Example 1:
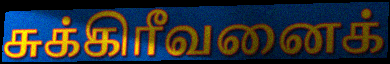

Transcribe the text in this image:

சுக்கிரீவனைக்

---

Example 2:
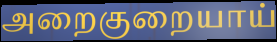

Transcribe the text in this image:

அறைகுறையாய்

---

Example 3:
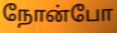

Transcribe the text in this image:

நோன்போ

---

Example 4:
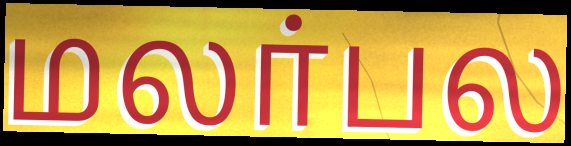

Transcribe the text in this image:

மலர்பல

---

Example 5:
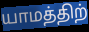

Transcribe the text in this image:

யாமத்திற்